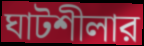
ঘাটশীলার